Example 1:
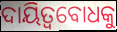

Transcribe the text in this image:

ଦାୟିତ୍ୱବୋଧକୁ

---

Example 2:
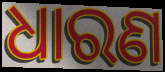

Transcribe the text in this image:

ଧାରଣ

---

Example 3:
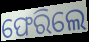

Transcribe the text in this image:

ଫେରିଲେ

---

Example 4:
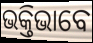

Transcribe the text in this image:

ଭକ୍ତିଭାବେ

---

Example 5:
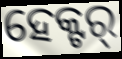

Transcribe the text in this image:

ହେକ୍ଟର୍